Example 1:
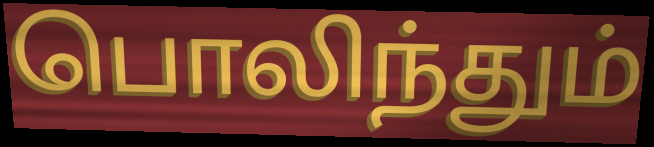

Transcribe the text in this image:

பொலிந்தும்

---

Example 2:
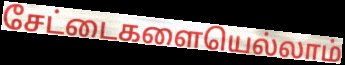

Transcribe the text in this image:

சேட்டைகளையெல்லாம்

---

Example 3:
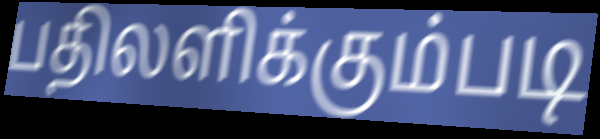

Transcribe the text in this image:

பதிலளிக்கும்படி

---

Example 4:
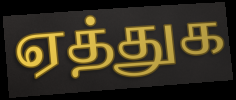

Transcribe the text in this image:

ஏத்துக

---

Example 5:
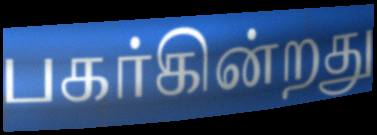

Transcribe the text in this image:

பகர்கின்றது